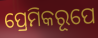
ପ୍ରେମିକରୂପେ